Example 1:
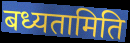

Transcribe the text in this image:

बध्यतामिति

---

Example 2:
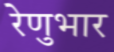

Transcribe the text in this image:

रेणुभार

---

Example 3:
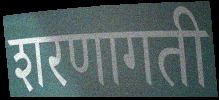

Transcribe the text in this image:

शरणागती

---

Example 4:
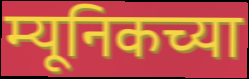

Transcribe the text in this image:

म्यूनिकच्या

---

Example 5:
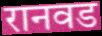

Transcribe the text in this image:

रानवड